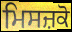
ਮਿਸਜ਼ਕੋ